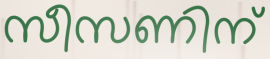
സീസണിന്